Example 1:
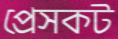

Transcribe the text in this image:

প্রেসকট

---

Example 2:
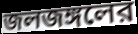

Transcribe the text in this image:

জলজঙ্গলের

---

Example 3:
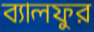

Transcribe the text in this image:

ব্যালফুর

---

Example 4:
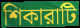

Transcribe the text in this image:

শিকারাটি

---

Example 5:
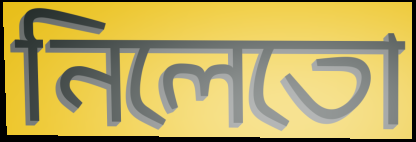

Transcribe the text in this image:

নিলেতো